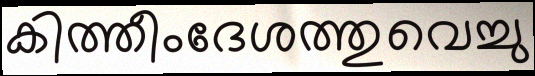
കിത്തീംദേശത്തുവെച്ചു